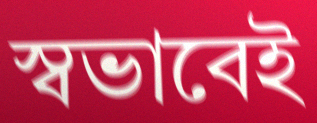
স্বভাবেই